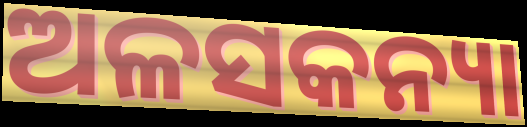
ଅଳସକନ୍ୟା